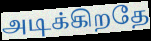
அடிக்கிறதே